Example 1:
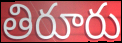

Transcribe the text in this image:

తిరూరు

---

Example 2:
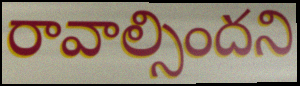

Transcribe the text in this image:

రావాల్సిందని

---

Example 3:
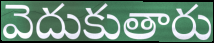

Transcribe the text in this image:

వెదుకుతారు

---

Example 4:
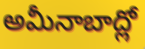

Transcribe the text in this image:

అమీనాబాద్లో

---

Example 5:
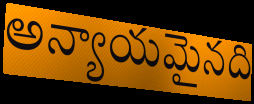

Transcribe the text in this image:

అన్యాయమైనది